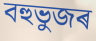
বহুভুজৰ